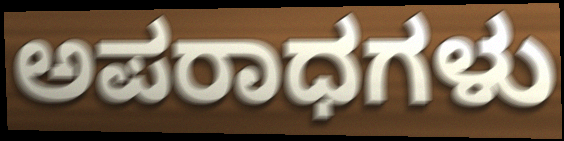
ಅಪರಾಧಗಳು